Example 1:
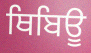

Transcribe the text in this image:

ਥਿਬਿਊ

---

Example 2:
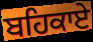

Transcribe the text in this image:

ਬਹਿਕਾਏ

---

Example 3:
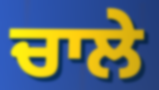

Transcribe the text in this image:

ਚਾਲੇ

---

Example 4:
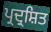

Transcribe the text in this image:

ਪ੍ਰਦ੍ਰਸ਼ਿਤ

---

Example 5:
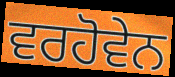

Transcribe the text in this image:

ਵਰਹੋਵੇਨ